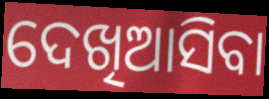
ଦେଖିଆସିବା